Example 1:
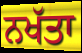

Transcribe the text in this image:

ਨਖੱਤਾ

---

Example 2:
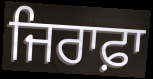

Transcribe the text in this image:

ਜਿਰਾਫ਼ਾ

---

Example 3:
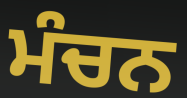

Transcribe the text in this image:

ਮੰਚਨ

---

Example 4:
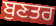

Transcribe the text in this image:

ਬੁਣਤਰ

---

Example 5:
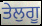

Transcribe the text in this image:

ਤੇਲੁਗੂ